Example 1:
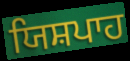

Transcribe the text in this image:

ਯਿਸ਼ਪਾਹ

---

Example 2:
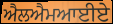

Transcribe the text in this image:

ਐਲਐਮਆਈਏ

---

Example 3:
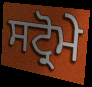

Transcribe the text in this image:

ਸਟ੍ਰੋਮੇ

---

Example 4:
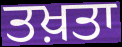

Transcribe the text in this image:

ਤਖ਼ਤਾ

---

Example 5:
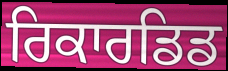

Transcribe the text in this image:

ਰਿਕਾਰਡਿਡ